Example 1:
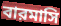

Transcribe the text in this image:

বারমাসি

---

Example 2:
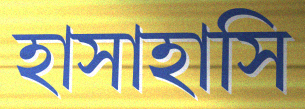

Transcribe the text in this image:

হাসাহাসি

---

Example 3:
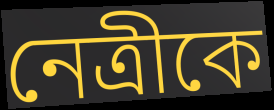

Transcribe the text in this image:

নেত্রীকে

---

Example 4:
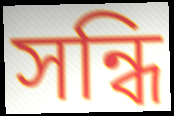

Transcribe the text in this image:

সন্ধি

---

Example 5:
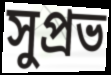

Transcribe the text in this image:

সুপ্রভ